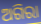
ଅଗିରା